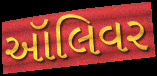
ઑલિવર